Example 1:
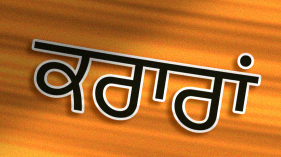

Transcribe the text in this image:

ਕਰਾਰਾਂ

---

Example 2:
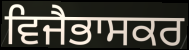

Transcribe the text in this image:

ਵਿਜੈਭਾਸਕਰ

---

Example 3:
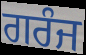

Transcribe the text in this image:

ਗਰੰਜ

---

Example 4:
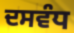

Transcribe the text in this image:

ਦਸਵੰਧ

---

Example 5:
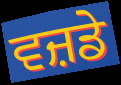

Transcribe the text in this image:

ਵਜ਼ਡੇ